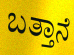
ಬತ್ತಾನೆ